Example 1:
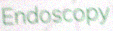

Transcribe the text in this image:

Endoscopy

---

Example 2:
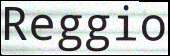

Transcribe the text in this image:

Reggio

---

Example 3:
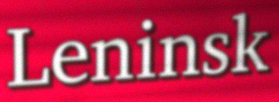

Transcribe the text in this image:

Leninsk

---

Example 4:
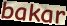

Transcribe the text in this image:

bakar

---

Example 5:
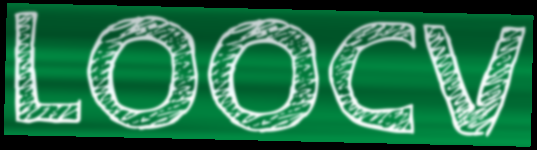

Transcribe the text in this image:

LOOCV